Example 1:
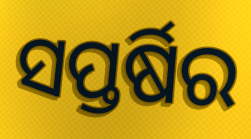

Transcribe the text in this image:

ସପ୍ତର୍ଷିର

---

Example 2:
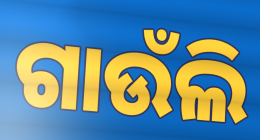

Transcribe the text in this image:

ଗାଉଁଲି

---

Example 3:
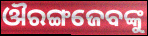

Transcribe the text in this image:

ଔରଙ୍ଗଜେବଙ୍କୁ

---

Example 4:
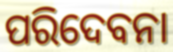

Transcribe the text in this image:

ପରିଦେବନା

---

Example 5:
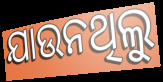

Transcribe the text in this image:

ଯାଉନଥିଲୁ